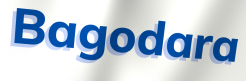
Bagodara